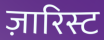
ज़ारिस्ट